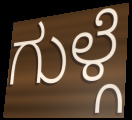
ಗುಳ್ಗೆ